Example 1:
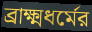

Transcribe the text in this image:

ব্রাক্ষ্মধর্মের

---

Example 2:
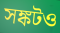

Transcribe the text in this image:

সঙ্কটও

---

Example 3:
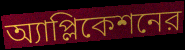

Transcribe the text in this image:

অ্যাপ্লিকেশনের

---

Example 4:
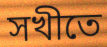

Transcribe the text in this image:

সখীতে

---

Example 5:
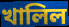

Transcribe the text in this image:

খালিল